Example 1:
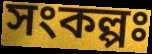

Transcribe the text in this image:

সংকল্পঃ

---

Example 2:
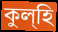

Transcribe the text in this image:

কুল্হি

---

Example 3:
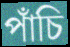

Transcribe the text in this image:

পাঁচি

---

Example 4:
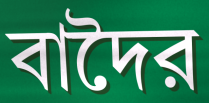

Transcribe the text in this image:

বাদৈর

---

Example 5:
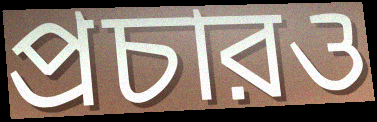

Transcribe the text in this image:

প্রচারও